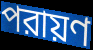
পরায়ণ